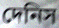
দেনিস